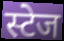
स्टेज